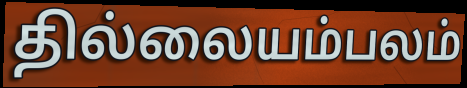
தில்லையம்பலம்